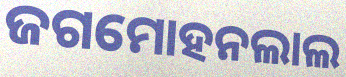
ଜଗମୋହନଲାଲ